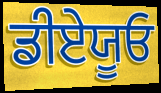
ਡੀਏਯੂਓ